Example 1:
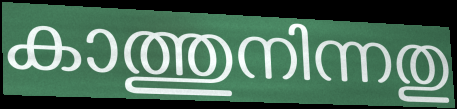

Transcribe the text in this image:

കാത്തുനിന്നതു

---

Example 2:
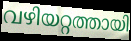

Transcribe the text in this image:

വഴിയറ്റത്തായി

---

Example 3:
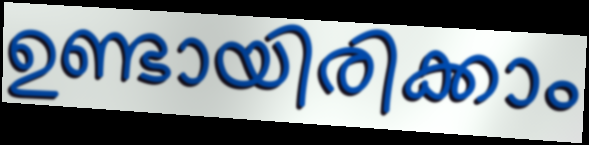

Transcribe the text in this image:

ഉണ്ടായിരിക്കാം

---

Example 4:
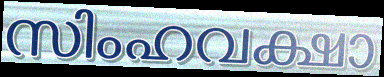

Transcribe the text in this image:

സിംഹവക്ഷാ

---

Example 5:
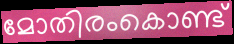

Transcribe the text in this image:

മോതിരംകൊണ്ട്